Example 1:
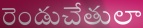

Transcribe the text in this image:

రెండుచేతులా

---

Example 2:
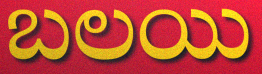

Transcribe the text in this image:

బలయి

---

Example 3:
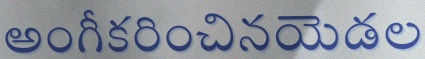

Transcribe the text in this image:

అంగీకరించినయెడల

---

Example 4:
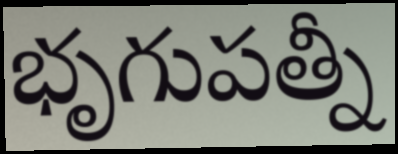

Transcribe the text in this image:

భృగుపత్నీ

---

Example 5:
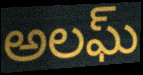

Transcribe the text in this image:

అలఘ్